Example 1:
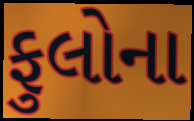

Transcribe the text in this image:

ફુલોના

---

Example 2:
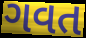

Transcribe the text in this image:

ગવત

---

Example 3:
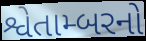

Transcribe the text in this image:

શ્વેતામ્બરનો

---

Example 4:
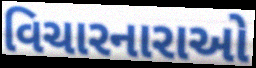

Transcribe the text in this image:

વિચારનારાઓ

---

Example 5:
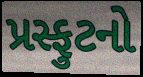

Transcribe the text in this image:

પ્રસ્ફુટનો